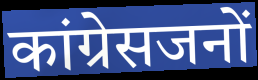
कांग्रेसजनों